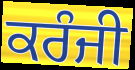
ਕਰੰਜੀ